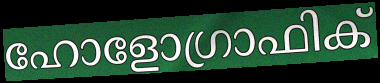
ഹോളോഗ്രാഫിക്